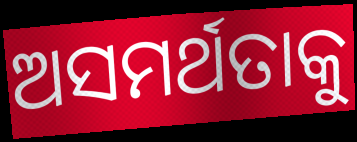
ଅସମର୍ଥତାକୁ